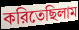
করিতেছিলাম